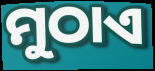
ମୁଠାଏ